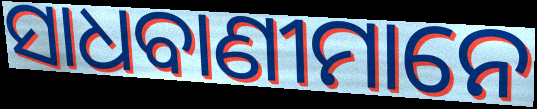
ସାଧବାଣୀମାନେ